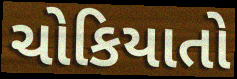
ચોકિયાતો